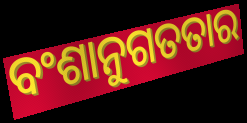
ବଂଶାନୁଗତତାର